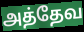
அத்தேவ